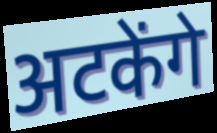
अटकेंगे